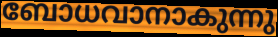
ബോധവാനാകുന്നു